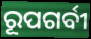
ରୂପଗର୍ବୀ